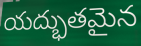
యద్భుతమైన